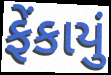
ફેંકાયું